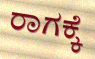
ರಾಗಕ್ಕೆ